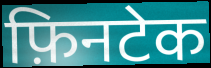
फ़िनटेक